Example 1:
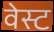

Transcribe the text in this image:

वेस्ट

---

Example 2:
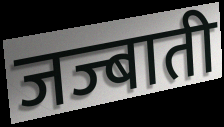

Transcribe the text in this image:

जज्बाती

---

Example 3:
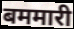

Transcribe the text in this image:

बममारी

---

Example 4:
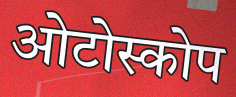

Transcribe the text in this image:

ओटोस्कोप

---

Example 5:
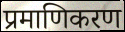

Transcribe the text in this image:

प्रमाणिकरण